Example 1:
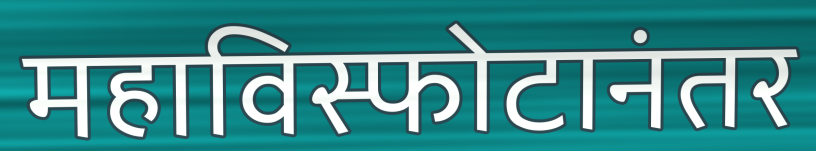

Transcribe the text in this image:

महाविस्फोटानंतर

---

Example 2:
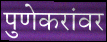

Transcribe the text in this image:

पुणेकरांवर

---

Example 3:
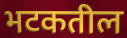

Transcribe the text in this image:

भटकतील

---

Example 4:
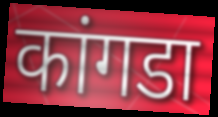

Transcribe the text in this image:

कांगडा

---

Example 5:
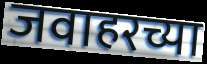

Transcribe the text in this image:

जवाहरच्या